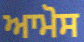
ਆਮੋਸ